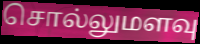
சொல்லுமளவு